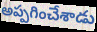
అప్పగించేశాడు